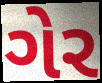
ગેર